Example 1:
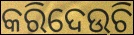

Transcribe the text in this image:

କରିଦେଉଚି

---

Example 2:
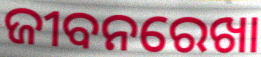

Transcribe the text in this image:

ଜୀବନରେଖା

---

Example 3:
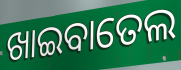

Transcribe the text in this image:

ଖାଇବାତେଲ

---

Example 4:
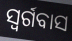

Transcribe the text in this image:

ସ୍ଵର୍ଗବାସ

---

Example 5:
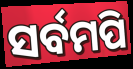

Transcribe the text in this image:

ସର୍ବମପି